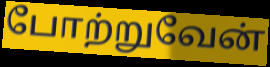
போற்றுவேன்